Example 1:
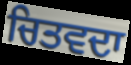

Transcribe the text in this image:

ਚਿਤਵਦਾ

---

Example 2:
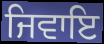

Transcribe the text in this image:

ਜਿਵਾਇ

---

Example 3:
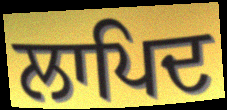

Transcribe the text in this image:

ਲਾਪਿਦ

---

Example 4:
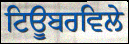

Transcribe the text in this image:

ਟਿਊਬਰਵਿਲੇ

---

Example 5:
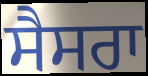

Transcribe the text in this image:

ਸੈਸਰਾ